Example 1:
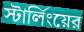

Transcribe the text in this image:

স্টার্লিংয়ের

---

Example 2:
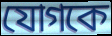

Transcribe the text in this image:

যোগকে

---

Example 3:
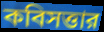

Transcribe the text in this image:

কবিসত্তার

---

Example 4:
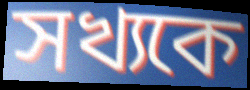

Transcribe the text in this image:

সখ্যকে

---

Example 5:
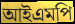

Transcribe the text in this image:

আইএমপি